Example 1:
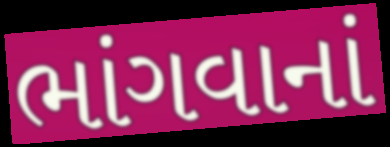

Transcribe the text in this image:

ભાંગવાનાં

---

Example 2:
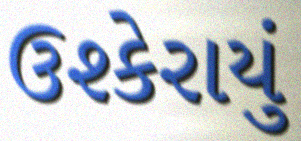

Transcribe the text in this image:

ઉશ્કેરાયું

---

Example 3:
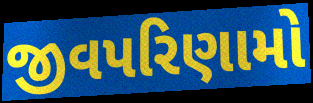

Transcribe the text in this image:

જીવપરિણામો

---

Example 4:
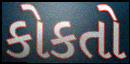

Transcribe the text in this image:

કોકતો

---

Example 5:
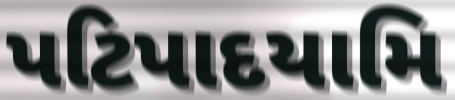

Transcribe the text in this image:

પટિપાદયામિ